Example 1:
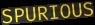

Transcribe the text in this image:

SPURIOUS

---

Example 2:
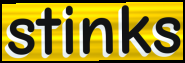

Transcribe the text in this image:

stinks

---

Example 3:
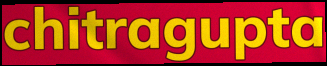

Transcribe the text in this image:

chitragupta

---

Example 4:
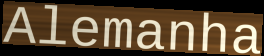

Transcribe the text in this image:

Alemanha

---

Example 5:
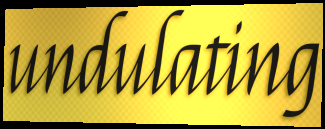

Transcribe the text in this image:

undulating